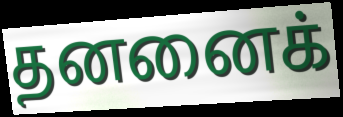
தனனைக்